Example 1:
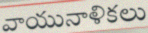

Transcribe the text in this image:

వాయునాళికలు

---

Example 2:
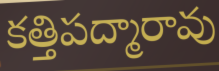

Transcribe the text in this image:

కత్తిపద్మారావు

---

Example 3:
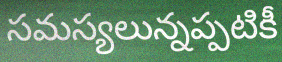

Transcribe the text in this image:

సమస్యలున్నప్పటికీ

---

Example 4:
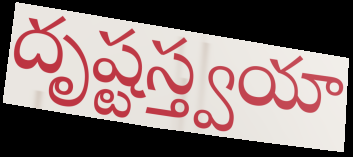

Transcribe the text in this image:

దృష్టస్త్వయా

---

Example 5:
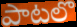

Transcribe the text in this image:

పాటలొ